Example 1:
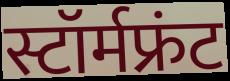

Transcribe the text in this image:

स्टॉर्मफ्रंट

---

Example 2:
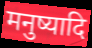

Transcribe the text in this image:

मनुष्यादि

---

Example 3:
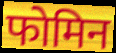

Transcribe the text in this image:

फोमिन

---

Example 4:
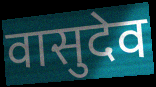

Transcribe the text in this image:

वासुदेव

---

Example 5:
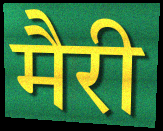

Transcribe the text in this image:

मैरी